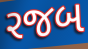
રજબ